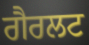
ਗੈਰਲਟ